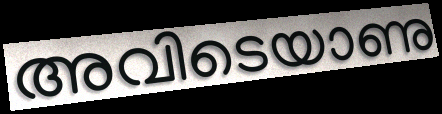
അവിടെയാണു